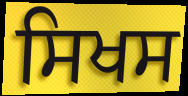
ਸਿਖਸ